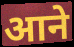
आने